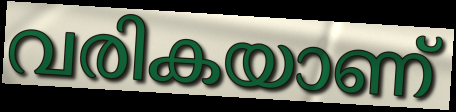
വരികയാണ്